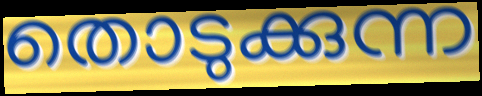
തൊടുക്കുന്ന